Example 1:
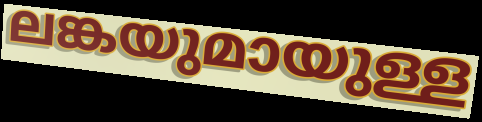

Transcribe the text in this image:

ലങ്കയുമായുള്ള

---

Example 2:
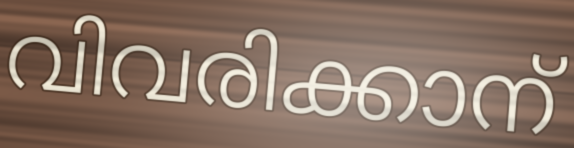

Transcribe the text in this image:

വിവരിക്കാന്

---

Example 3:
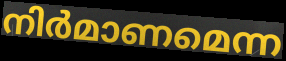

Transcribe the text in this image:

നിർമാണമെന്ന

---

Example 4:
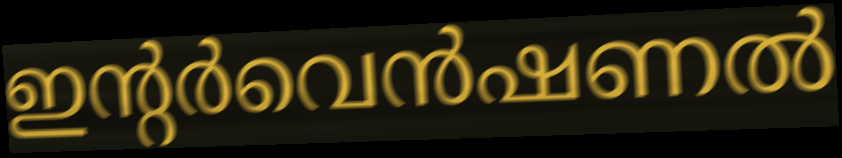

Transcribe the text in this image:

ഇന്റർവെൻഷണൽ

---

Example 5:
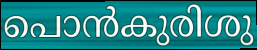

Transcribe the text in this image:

പൊൻകുരിശു